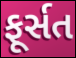
ફૂર્સત